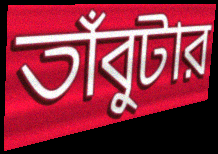
তাঁবুটার